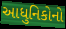
આધુનિકોનો